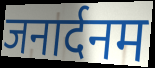
जनार्दनम